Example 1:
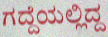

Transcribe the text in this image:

ಗದ್ದೆಯಲ್ಲಿದ್ದ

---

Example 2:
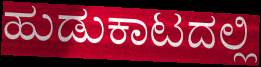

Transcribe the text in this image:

ಹುಡುಕಾಟದಲ್ಲಿ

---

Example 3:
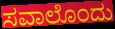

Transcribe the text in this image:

ಸವಾಲೊಂದು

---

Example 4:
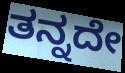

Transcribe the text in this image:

ತನ್ನದೇ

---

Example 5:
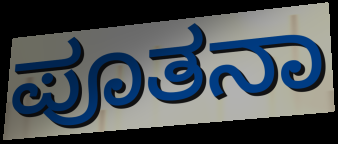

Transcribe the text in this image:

ಪೂತನಾ